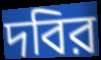
দবির